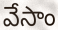
వేసాం